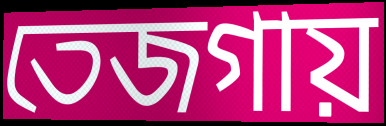
তেজগায়